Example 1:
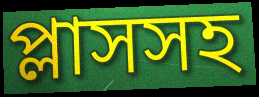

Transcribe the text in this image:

প্লাসসহ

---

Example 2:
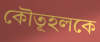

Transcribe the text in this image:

কৌতূহলকে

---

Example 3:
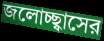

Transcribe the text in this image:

জলোচ্ছ্বাসের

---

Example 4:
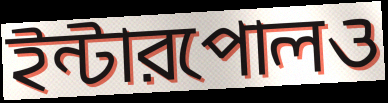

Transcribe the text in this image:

ইন্টারপোলও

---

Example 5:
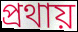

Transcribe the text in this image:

প্রথায়